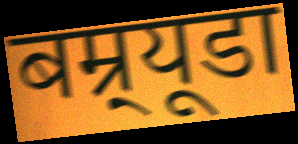
बम्र्यूडा